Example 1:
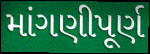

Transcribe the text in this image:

માંગણીપૂર્ણ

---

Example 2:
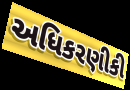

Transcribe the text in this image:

અધિકરણીકી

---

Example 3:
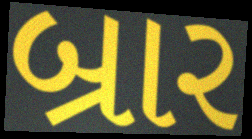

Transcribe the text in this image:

બ્રાર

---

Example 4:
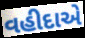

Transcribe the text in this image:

વહીદાએ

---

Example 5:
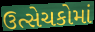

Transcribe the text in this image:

ઉત્સેચકોમાં